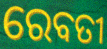
ରେବତୀ